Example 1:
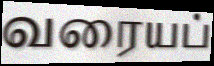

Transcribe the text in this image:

வரையப்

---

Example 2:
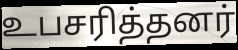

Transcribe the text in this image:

உபசரித்தனர்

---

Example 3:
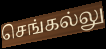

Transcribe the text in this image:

செங்கல்லு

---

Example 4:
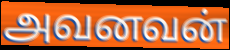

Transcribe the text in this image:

அவனவன்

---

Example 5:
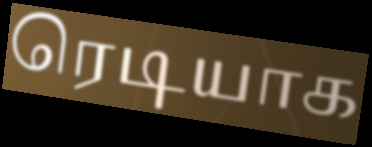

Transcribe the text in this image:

ரெடியாக